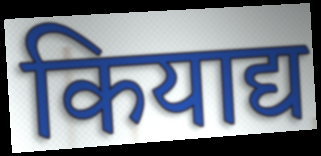
कियाद्य